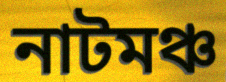
নাটমঞ্চ